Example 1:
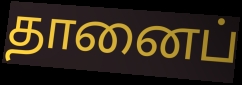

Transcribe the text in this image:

தானைப்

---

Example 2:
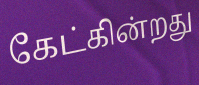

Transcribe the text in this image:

கேட்கின்றது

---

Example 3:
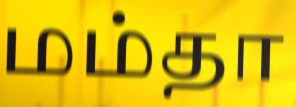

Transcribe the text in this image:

மம்தா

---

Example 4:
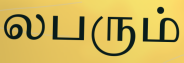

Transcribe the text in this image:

லபரும்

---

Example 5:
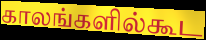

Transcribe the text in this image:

காலங்களில்கூட